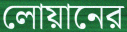
লোয়ানের